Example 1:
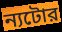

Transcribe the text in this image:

ন্যটোর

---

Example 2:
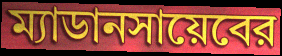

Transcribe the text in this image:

ম্যাডানসায়েবের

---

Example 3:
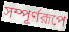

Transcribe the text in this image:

সম্পূর্ণরূপে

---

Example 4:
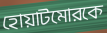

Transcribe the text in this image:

হোয়াটমোরকে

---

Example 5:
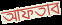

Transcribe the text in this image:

আফতাব